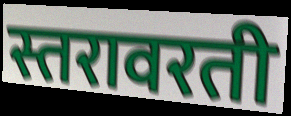
स्तरावरती